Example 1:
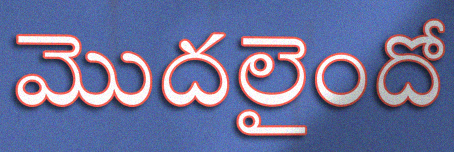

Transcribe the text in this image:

మొదలైందో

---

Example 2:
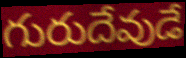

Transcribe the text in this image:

గురుదేవుడే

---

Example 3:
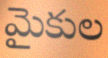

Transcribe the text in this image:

మైకుల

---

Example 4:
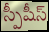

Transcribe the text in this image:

స్పీషీస్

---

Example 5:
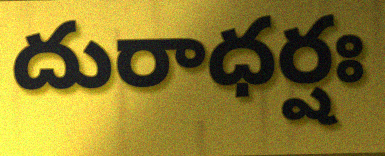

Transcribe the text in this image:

దురాధర్షః